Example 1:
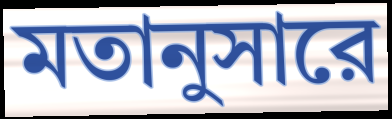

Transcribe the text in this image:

মতানুসারে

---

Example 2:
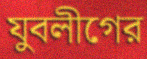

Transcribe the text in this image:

যুবলীগের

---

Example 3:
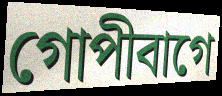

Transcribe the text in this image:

গোপীবাগে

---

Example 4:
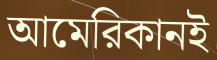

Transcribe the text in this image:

আমেরিকানই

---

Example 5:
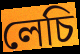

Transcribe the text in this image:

লেচি